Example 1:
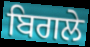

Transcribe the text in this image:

ਬਿਗਲੇ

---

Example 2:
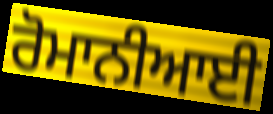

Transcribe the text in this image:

ਰੋਮਾਨੀਆਈ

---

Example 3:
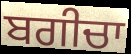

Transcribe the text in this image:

ਬਗੀਚਾ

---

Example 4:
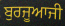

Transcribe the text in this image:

ਬੁਰਜੂਆਜੀ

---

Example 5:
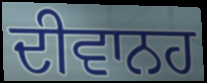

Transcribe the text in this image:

ਦੀਵਾਨਹ